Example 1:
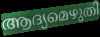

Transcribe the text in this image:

ആദ്യമെഴുതി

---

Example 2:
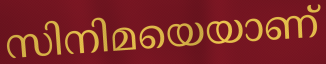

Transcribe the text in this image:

സിനിമയെയാണ്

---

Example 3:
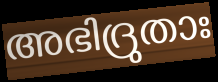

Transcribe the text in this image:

അഭിദ്രുതാഃ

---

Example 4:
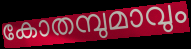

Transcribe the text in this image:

കോതമ്പുമാവും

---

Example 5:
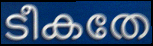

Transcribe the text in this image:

ടീകതേ